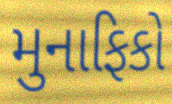
મુનાફિકો